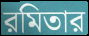
রমিতার